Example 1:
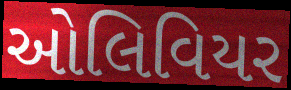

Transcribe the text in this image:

ઓલિવિયર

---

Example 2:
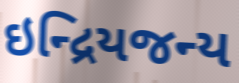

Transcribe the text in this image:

ઇન્દ્રિયજન્ય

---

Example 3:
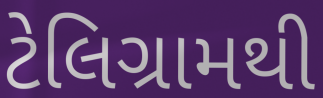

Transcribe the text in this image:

ટેલિગ્રામથી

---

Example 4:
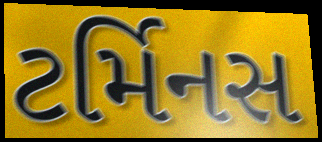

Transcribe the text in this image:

ટર્મિનસ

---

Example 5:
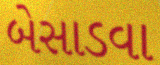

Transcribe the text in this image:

બેસાડવા